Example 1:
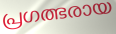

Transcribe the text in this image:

പ്രഗത്ഭരായ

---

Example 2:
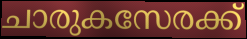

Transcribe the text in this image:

ചാരുകസേരക്ക്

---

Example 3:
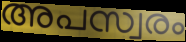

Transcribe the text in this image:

അപസ്വരം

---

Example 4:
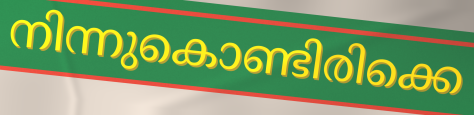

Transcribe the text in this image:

നിന്നുകൊണ്ടിരിക്കെ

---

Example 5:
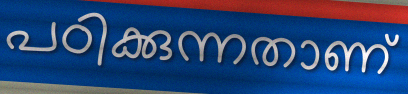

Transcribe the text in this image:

പഠിക്കുന്നതാണ്